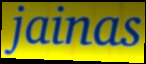
jainas